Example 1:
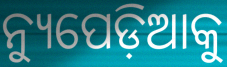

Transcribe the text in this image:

ନ୍ୟୁପେଡ଼ିଆକୁ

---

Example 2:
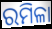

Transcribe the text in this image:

ରମିଳା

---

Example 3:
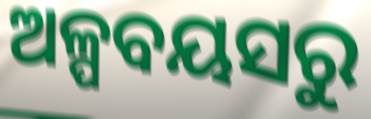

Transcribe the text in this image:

ଅଳ୍ପବୟସରୁ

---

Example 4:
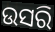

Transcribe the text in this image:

ଉସରି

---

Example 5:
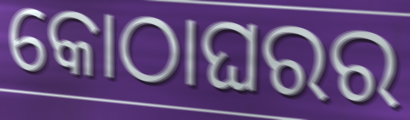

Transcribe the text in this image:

କୋଠାଘରର